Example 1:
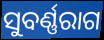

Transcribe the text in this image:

ସୁବର୍ଣ୍ଣରାଗ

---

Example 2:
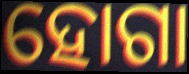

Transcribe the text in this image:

ହୋଗା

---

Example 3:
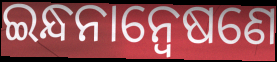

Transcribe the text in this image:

ଇନ୍ଧନାନ୍ଵେଷଣେ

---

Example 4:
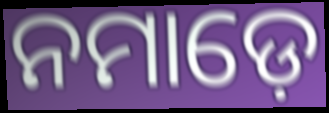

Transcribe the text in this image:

ନମାଡ଼େ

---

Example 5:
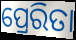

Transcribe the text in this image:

ପ୍ରେରିତା